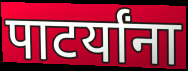
पाटर्यांना